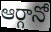
ఆర్గానో